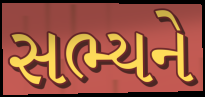
સભ્યને